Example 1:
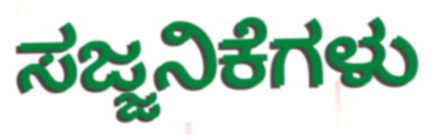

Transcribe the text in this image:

ಸಜ್ಜನಿಕೆಗಳು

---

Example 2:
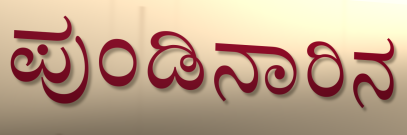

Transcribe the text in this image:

ಪುಂಡಿನಾರಿನ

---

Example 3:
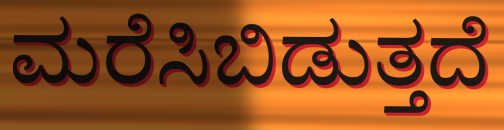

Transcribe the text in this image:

ಮರೆಸಿಬಿಡುತ್ತದೆ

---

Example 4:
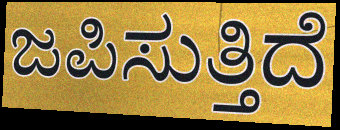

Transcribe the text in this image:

ಜಪಿಸುತ್ತಿದೆ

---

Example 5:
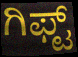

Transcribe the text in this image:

ಗಿಫ್ಟ್